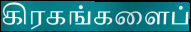
கிரகங்களைப்